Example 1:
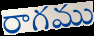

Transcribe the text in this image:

రాగము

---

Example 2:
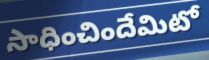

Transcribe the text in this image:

సాధించిందేమిటో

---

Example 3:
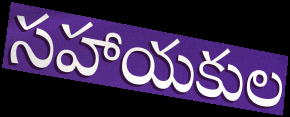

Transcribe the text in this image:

సహాయకుల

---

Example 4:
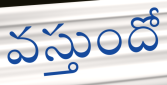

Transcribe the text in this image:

వస్తుందో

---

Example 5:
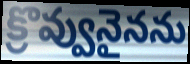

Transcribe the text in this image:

క్రొవ్వునైనను